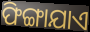
ଫିଙ୍ଗାଯାଏ